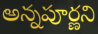
అన్నపూర్ణని